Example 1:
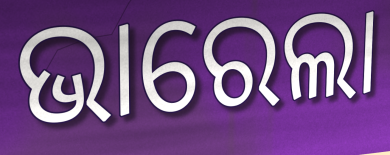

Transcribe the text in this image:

ଭାରେଲା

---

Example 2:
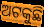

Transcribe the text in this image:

ଅଟକୁଛି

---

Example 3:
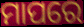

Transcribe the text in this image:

ମାପରେ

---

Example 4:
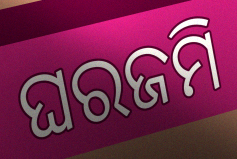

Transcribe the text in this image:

ଘରଜମି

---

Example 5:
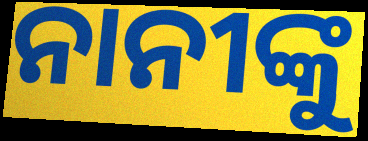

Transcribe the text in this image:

ନାନୀଙ୍କୁ